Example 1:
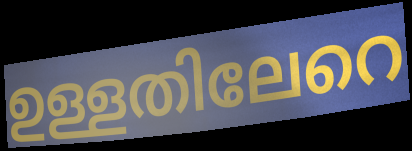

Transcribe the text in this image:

ഉള്ളതിലേറെ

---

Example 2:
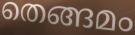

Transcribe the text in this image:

തെങ്ങമം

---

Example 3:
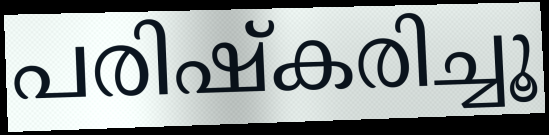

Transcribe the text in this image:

പരിഷ്കരിച്ചൂ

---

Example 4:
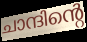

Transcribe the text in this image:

ചാന്ദിന്റെ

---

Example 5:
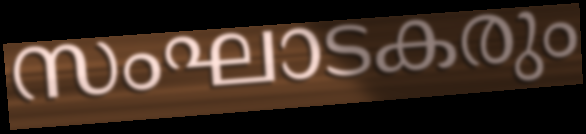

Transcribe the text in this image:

സംഘാടകരും